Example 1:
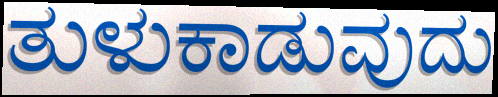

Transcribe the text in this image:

ತುಳುಕಾಡುವುದು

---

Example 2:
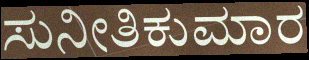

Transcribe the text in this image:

ಸುನೀತಿಕುಮಾರ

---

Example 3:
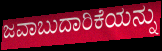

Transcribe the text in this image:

ಜವಾಬುದಾರಿಕೆಯನ್ನು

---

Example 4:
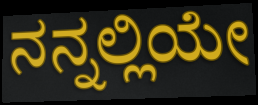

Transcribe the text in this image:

ನನ್ನಲ್ಲಿಯೇ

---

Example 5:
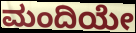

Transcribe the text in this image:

ಮಂದಿಯೇ